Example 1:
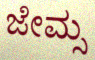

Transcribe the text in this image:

ಜೇಮ್ಸ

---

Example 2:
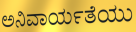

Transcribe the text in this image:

ಅನಿವಾರ್ಯತೆಯು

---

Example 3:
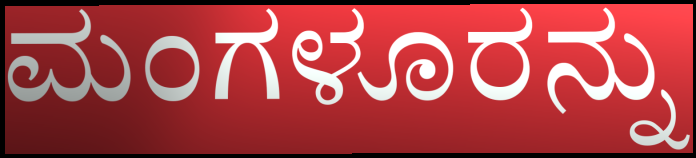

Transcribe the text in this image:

ಮಂಗಳೂರನ್ನು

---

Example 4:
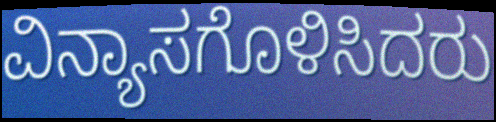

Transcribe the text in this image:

ವಿನ್ಯಾಸಗೊಳಿಸಿದರು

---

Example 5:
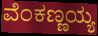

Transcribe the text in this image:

ವೆಂಕಣ್ಣಯ್ಯ